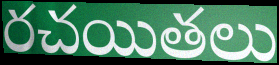
రచయితలు